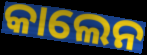
କାଲେନ